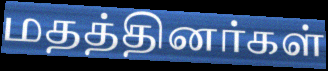
மதத்தினர்கள்